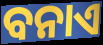
ବନାଏ